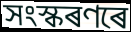
সংস্কৰণৰে